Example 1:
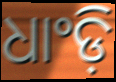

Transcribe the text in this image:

ଧାଂଡ଼ି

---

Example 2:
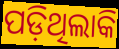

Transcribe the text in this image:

ପଡ଼ିଥିଲାକି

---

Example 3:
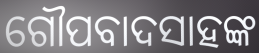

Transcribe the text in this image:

ଗୌପବାଦସାହଙ୍କ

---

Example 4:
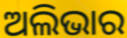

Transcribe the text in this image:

ଅଲିଭାର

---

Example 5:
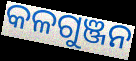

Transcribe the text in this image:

କଳଗୁଞ୍ଜନ